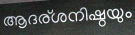
ആദര്ശനിഷ്ഠയും